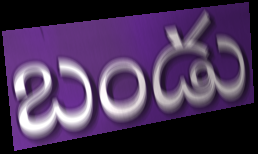
బండు